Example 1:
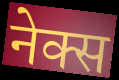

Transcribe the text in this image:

नेक्स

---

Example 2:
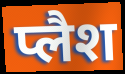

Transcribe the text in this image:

प्लैश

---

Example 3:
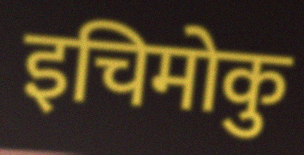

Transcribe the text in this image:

इचिमोकु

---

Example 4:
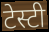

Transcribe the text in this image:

टेस्टी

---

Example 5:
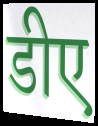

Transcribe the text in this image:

डीए